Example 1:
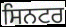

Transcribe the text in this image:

ਸਿਨਟਰ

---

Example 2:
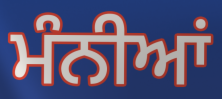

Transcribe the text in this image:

ਮੰਨੀਆਂ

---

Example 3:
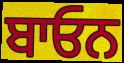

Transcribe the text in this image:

ਬਾਓਨ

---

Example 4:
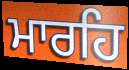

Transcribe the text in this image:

ਮਾਰਹਿ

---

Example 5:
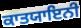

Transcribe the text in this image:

ਕਾਤਯਾਇਨੀ